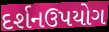
દર્શનઉપયોગ